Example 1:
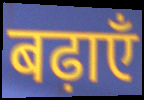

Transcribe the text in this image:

बढ़ाएँ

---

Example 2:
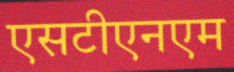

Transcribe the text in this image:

एसटीएनएम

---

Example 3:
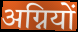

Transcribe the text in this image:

अग्नियों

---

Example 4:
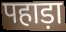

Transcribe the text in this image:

पहाड़ा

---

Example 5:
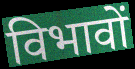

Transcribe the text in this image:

विभावों